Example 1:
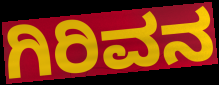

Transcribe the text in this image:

ಗಿರಿವನ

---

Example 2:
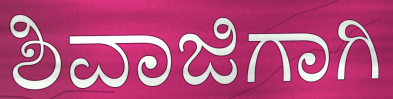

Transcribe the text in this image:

ಶಿವಾಜಿಗಾಗಿ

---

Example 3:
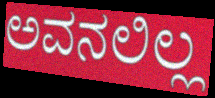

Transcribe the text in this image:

ಅವನಲಿಲ್ಲ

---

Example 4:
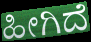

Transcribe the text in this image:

ಹೀಗಿದೆ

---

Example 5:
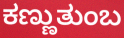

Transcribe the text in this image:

ಕಣ್ಣುತುಂಬ